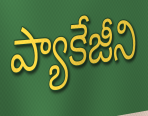
ప్యాకేజీని